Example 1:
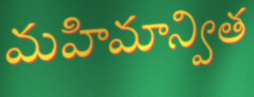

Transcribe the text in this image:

మహిమాన్విత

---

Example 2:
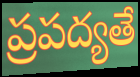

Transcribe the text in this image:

ప్రపద్యతే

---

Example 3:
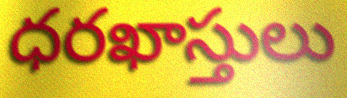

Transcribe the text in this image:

ధరఖాస్తులు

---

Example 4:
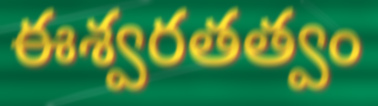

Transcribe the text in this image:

ఈశ్వరతత్వం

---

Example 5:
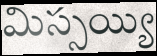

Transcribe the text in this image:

మిస్సయ్యి